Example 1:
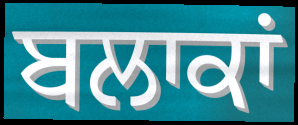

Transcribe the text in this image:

ਬਲਾਕਾਂ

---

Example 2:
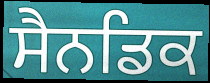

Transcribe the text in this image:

ਸੈਨਡਿਕ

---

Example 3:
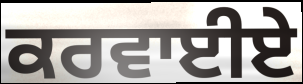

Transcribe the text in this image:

ਕਰਵਾਈਏ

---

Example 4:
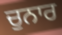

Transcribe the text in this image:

ਚੁਨਾਰ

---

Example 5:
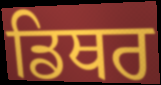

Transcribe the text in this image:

ਡਿਥਰ